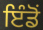
ਇੰਡੋਂ